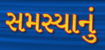
સમસ્યાનું